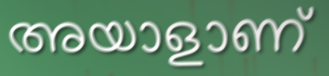
അയാളാണ്